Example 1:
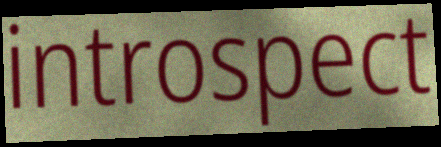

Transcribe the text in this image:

introspect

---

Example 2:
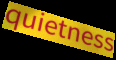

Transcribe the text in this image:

quietness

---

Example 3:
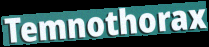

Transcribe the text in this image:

Temnothorax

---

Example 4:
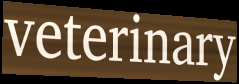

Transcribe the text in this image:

veterinary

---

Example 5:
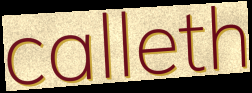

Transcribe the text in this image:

calleth